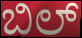
ಬಿಲ್